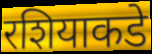
रशियाकडे